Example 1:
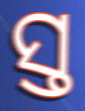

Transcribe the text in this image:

ସ୍ତ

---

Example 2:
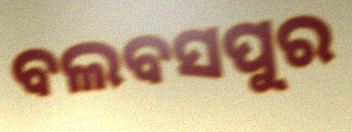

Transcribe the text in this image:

ବଲବସପୁର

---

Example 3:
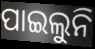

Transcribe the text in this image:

ପାଇଲୁନି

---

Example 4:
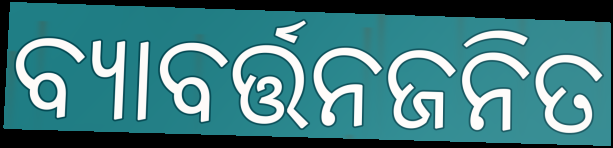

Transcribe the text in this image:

ବ୍ୟାବର୍ତ୍ତନଜନିତ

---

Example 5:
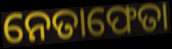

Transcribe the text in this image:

ନେତାଫେତା